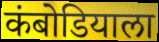
कंबोडियाला